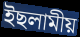
ইছলামীয়